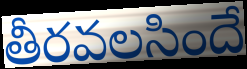
తీరవలసిందే